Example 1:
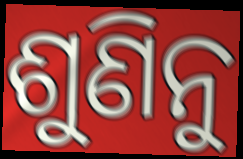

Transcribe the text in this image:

ଶୁଣିନୁ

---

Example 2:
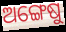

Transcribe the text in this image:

ଅଙ୍ଗେଷୁ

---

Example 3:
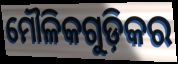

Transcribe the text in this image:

ମୌଳିକଗୁଡ଼ିକର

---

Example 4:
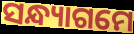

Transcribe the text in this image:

ସନ୍ଧ୍ୟାଗମେ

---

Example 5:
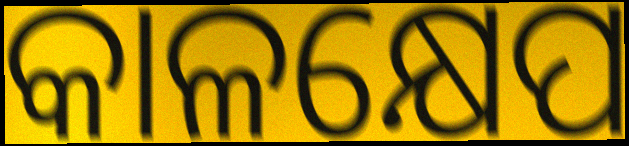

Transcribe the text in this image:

କାଳକ୍ଷେପ